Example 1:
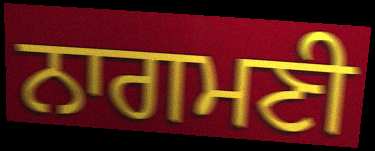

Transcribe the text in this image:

ਨਾਗਮਣੀ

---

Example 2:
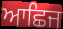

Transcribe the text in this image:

ਆਛਿਜ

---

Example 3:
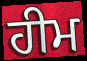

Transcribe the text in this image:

ਹੀਮ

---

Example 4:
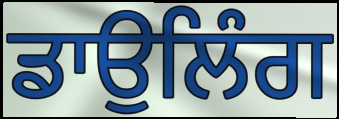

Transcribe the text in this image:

ਡਾਉਲਿੰਗ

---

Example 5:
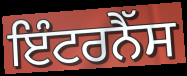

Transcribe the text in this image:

ਇੰਟਰਨੈੱਸ